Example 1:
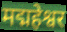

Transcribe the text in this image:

मद्महेश्वर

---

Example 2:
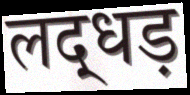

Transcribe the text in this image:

लद्धड़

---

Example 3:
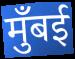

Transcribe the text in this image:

मुँबई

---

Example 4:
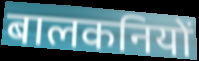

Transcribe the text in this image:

बालकनियों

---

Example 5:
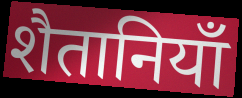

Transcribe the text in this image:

शैतानियाँ